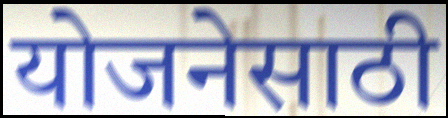
योजनेसाठी